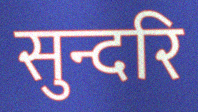
सुन्दरि